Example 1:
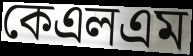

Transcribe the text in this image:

কেএলএম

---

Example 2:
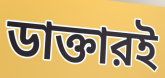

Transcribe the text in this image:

ডাক্তারই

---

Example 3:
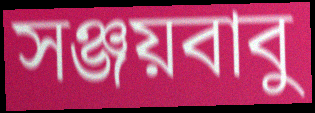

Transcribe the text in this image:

সঞ্জয়বাবু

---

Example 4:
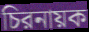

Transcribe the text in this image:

চিরনায়ক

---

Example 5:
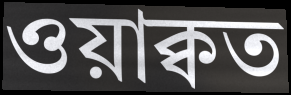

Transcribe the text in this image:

ওয়াক্বত